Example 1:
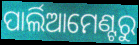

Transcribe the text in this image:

ପାର୍ଲିଆମେଣ୍ଟରୁ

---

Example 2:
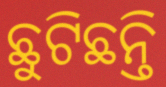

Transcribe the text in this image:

ଛୁଟିଛନ୍ତି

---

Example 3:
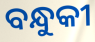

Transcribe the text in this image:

ବନ୍ଧୁକୀ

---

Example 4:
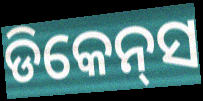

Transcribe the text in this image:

ଡିକେନ୍‌ସ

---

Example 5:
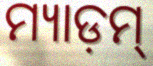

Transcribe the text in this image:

ମ୍ୟାଡ଼ମ୍